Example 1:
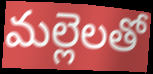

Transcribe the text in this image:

మల్లెలతో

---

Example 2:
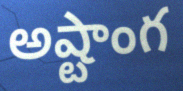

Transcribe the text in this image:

అష్టాంగ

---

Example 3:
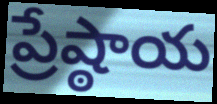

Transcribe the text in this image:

ప్రేష్ఠాయ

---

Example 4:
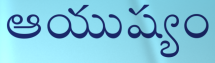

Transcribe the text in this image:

ఆయుష్యం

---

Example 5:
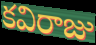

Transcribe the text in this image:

కవిరాజు